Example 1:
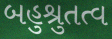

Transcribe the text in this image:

બહુશ્રુતત્વ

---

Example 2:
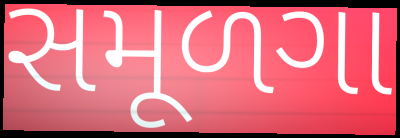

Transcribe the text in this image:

સમૂળગા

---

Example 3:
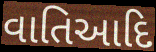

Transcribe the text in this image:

વાતિઆદિ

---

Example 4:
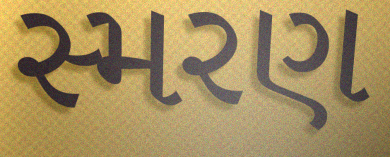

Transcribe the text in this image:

સ્‍મરણ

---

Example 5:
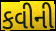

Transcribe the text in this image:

કવીની